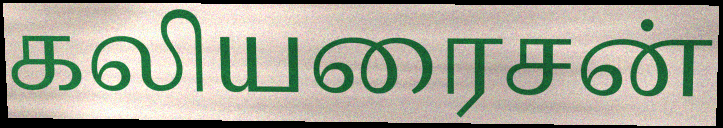
கலியரைசன்